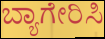
ಬ್ಯಾಗೇರಿಸಿ